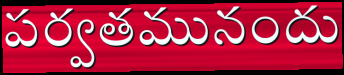
పర్వతమునందు